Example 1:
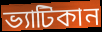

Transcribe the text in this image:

ভ্যাটিকান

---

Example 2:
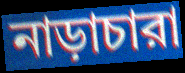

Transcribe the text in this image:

নাড়াচারা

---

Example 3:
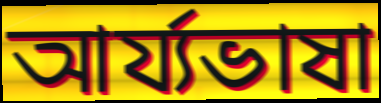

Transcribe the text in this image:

আর্য্যভাষা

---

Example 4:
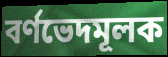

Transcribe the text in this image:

বর্ণভেদমূলক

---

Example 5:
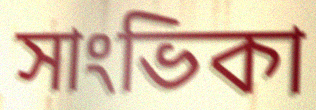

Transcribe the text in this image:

সাংভিকা